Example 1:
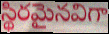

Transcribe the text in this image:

స్థిరమైనవిగా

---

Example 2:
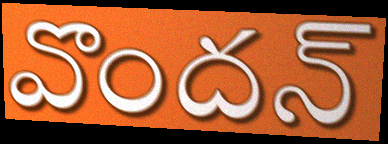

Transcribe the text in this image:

వొందన్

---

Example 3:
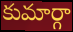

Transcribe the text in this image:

కుమార్గా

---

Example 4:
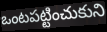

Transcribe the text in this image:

ఒంటపట్టించుకుని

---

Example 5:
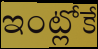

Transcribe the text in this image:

ఇంట్లోకే